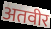
अतवीर